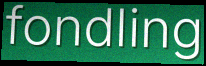
fondling